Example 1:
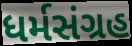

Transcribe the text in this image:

ધર્મસંગ્રહ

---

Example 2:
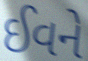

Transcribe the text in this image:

ઈવને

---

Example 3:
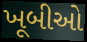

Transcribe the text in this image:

ખૂબીઓ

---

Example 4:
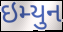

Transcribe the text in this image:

ઇમ્યુન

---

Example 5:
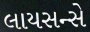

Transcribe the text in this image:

લાયસન્સે